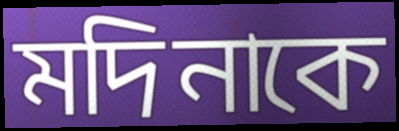
মদিনাকে